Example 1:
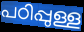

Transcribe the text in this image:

പഠിപ്പുള്ള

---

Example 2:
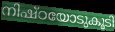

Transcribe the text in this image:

നിഷ്ഠയോടുകൂടി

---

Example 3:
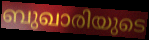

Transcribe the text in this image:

ബുഖാരിയുടെ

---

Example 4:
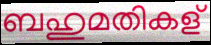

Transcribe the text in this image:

ബഹുമതികള്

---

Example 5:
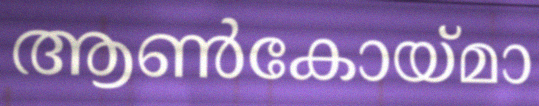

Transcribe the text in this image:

ആൺകോയ്മാ